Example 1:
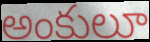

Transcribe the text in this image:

అంకులూ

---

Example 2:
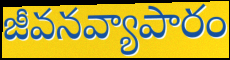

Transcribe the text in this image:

జీవనవ్యాపారం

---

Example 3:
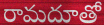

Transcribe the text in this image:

రామదూతో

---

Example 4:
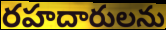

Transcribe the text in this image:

రహదారులను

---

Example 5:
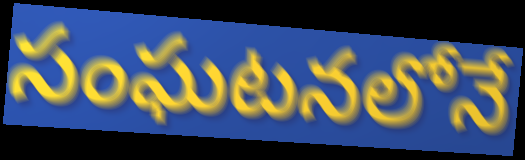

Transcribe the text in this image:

సంఘటనలోనే